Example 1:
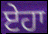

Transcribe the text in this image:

ਏਹਾ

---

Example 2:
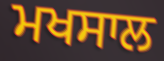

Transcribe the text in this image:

ਮਖਸਾਲ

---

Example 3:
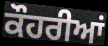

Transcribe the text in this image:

ਕੌਹਰੀਆਂ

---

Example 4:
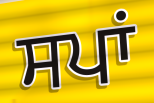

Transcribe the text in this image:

ਸਪਾਂ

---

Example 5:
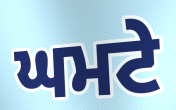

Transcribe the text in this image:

ਘਮਟੇ